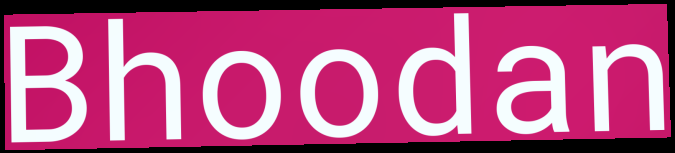
Bhoodan